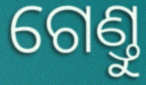
ଗେଣ୍ତୁ